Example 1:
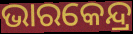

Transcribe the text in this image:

ଭାରକେନ୍ଦ୍ର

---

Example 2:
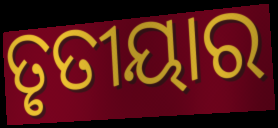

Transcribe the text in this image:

ତୃତୀୟାର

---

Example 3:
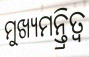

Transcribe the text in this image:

ମୁଖ୍ୟମନ୍ତ୍ରିତ୍ୱ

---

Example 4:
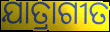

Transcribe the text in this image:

ଯାତ୍ରାଗୀତ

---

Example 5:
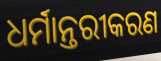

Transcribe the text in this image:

ଧର୍ମାନ୍ତରୀକରଣ